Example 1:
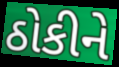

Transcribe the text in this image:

ઠોકીને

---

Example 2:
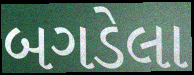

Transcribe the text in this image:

બગડેલા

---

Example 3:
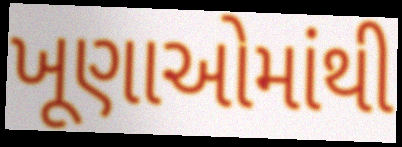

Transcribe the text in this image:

ખૂણાઓમાંથી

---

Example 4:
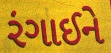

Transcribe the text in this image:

રંગાઈને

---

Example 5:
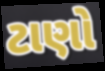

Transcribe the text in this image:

ટાણો